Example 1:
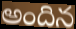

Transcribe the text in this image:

అందిన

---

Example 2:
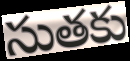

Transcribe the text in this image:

సుతకు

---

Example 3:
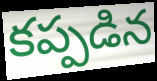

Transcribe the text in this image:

కప్పడిన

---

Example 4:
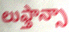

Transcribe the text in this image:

లుఫ్తాన్సా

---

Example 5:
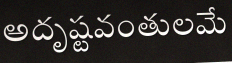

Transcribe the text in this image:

అదృష్టవంతులమే